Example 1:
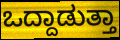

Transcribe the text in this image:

ಒದ್ದಾಡುತ್ತಾ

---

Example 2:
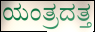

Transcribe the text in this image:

ಯಂತ್ರದತ್ತ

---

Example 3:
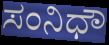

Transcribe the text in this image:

ಸಂನಿಧೌ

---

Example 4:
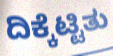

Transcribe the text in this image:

ದಿಕ್ಕೆಟ್ಟಿತು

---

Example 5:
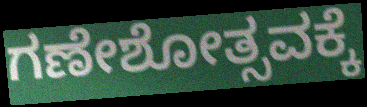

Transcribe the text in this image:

ಗಣೇಶೋತ್ಸವಕ್ಕೆ